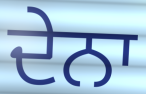
ਦੇਨਾ